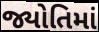
જ્યોતિમાં